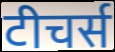
टीचर्स